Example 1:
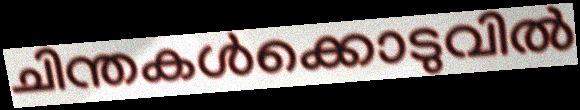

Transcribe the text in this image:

ചിന്തകൾക്കൊടുവിൽ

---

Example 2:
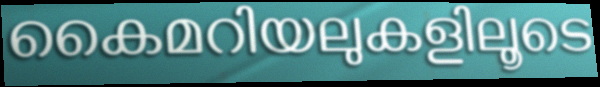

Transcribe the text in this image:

കൈമറിയലുകളിലൂടെ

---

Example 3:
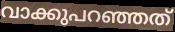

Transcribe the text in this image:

വാക്കുപറഞ്ഞത്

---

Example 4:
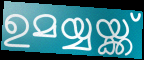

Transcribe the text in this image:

ഉമയ്യയ്ക്ക്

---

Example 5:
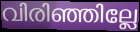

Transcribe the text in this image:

വിരിഞ്ഞില്ലേ